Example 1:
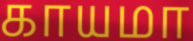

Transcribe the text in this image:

காயமா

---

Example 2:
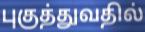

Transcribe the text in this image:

புகுத்துவதில்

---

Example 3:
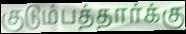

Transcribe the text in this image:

குடும்பத்தார்க்கு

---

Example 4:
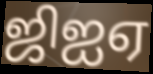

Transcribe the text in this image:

ஜிஐஏ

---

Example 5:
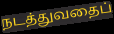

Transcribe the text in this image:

நடத்துவதைப்